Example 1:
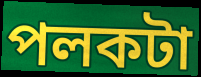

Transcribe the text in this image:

পলকটা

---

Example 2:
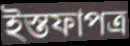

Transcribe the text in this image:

ইস্তফাপত্র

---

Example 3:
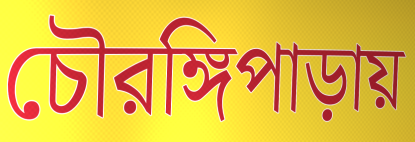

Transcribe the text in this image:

চৌরঙ্গিপাড়ায়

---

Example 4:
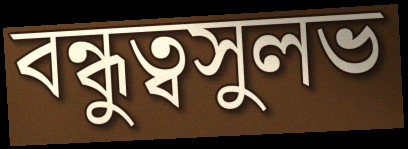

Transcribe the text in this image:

বন্ধুত্বসুলভ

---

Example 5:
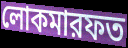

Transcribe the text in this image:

লোকমারফত